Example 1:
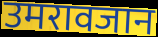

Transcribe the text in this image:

उमरावजान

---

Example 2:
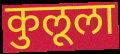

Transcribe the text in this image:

कुलूला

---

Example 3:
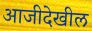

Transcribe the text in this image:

आजीदेखील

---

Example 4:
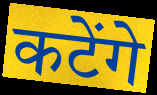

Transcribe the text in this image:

कटेंगे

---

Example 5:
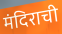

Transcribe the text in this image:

मंदिराची